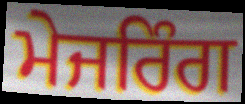
ਮੇਜਰਿੰਗ